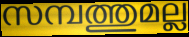
സമ്പത്തുമല്ല